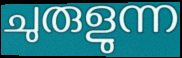
ചുരുളുന്ന